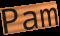
Pam